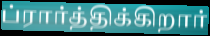
ப்ரார்த்திக்கிறார்